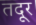
तदूर